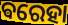
ଵରେହା